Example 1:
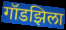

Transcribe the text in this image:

गॉडझिला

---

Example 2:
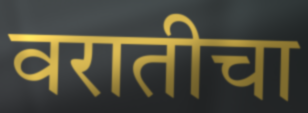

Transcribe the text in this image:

वरातीचा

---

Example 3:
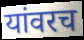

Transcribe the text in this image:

यांवरच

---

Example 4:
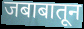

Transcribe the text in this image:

जबाबातून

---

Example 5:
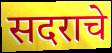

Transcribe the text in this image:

सदराचे